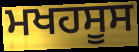
ਮਖਹਸੂਸ